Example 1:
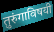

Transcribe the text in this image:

तुरुंगाविषयी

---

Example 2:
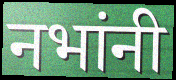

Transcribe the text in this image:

नभांनी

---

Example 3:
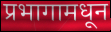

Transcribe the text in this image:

प्रभागामधून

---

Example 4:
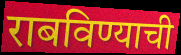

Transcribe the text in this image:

राबविण्याची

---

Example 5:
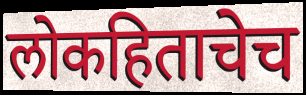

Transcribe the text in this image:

लोकहिताचेच